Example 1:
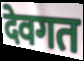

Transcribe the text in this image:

देवगत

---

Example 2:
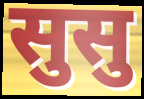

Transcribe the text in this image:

सुसु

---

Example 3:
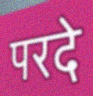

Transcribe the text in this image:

परदे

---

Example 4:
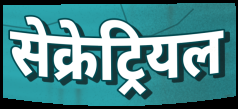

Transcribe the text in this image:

सेक्रेट्रियल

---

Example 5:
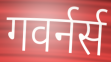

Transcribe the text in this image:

गवर्नर्स